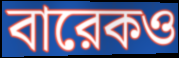
বারেকও